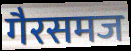
गैरसमज